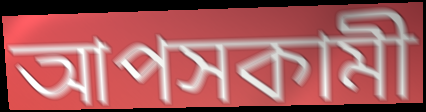
আপসকামী